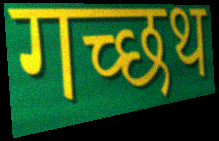
गच्छथ